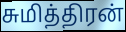
சுமித்திரன்